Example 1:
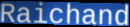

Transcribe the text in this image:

Raichand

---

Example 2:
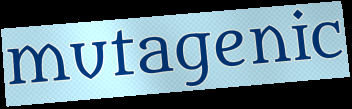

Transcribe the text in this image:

mutagenic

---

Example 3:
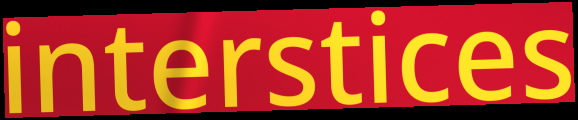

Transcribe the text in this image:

interstices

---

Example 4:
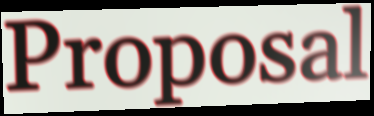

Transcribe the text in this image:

Proposal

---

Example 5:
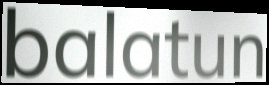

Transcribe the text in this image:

balatun